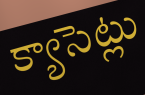
క్యాసెట్లు